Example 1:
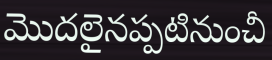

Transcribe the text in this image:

మొదలైనప్పటినుంచీ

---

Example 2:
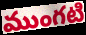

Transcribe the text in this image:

ముంగటి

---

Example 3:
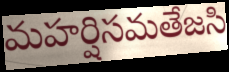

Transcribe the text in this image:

మహర్షిసమతేజసి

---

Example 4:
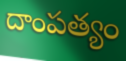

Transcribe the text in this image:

దాంపత్యం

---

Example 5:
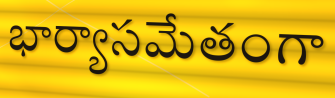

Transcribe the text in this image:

భార్యాసమేతంగా